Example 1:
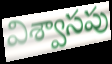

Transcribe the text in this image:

విశ్వాసపు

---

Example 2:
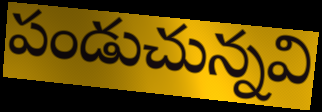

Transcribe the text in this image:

పండుచున్నవి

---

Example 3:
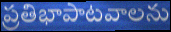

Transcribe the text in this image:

ప్రతిభాపాటవాలను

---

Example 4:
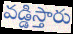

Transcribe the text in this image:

వడ్డిస్తారు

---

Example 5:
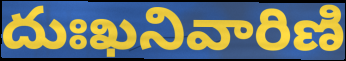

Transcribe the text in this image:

దుఃఖనివారిణి